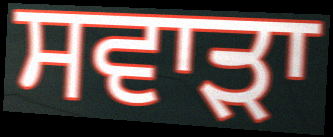
ਸਵਾੜਾ